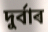
দুৰ্বাৰ